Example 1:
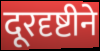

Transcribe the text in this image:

दूरदृष्टीने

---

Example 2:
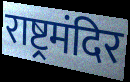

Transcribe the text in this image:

राष्ट्रमंदिर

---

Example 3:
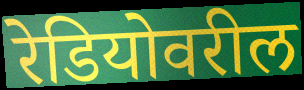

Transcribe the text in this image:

रेडियोवरील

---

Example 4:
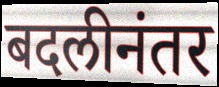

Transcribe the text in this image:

बदलीनंतर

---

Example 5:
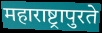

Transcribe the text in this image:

महाराष्ट्रापुरते